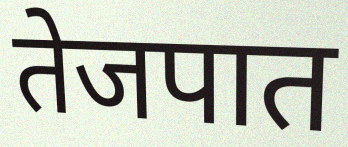
तेजपात